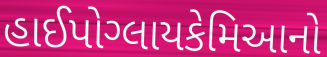
હાઈપોગ્લાયકેમિઆનો